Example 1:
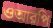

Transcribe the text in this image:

ওআরপি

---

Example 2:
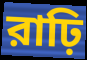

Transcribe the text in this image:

রাঢ়ি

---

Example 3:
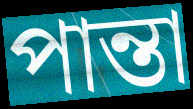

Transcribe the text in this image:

পান্তা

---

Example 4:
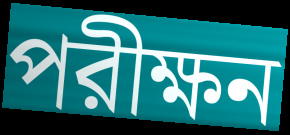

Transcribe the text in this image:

পরীক্ষন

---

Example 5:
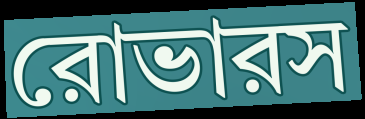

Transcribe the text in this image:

রোভারস